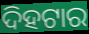
ଦିହଟାର